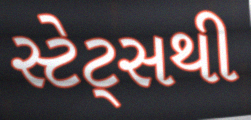
સ્ટેટ્સથી